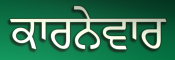
ਕਾਰਨੇਵਾਰ